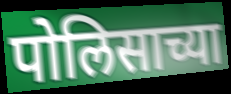
पोलिसाच्या